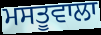
ਮਸਤੂਵਾਲਾ